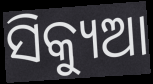
ସିକ୍ୟୁଆ